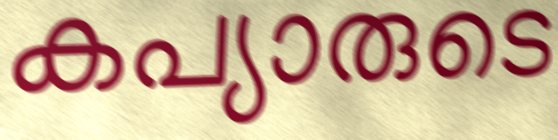
കപ്യാരുടെ